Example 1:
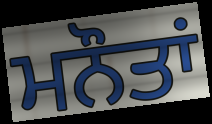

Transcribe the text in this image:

ਮਨੌਤਾਂ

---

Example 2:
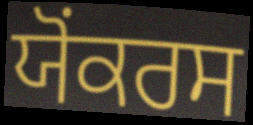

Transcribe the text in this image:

ਯੋੰਕਰਸ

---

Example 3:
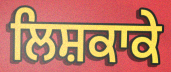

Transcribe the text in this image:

ਲਿਸ਼ਕਾਕੇ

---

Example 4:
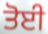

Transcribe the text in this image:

ਤੋਈ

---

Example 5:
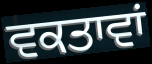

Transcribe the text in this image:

ਵਕਤਾਵਾਂ